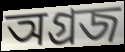
অগ্ৰজ